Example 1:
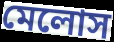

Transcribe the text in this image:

মেলোস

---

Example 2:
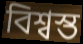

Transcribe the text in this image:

বিশ্বস্ত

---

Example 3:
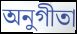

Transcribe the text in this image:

অনুগীতা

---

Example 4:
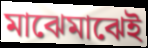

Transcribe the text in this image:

মাঝেমাঝেই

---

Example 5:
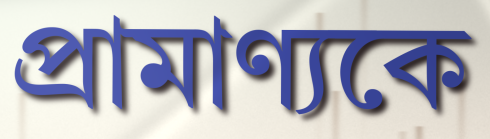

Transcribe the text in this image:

প্রামাণ্যকে